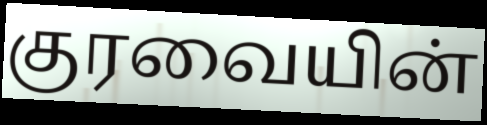
குரவையின்